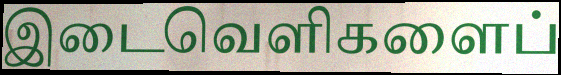
இடைவெளிகளைப்